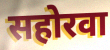
सहोरवा